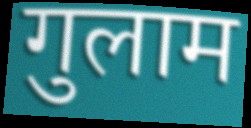
गुलाम